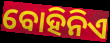
ବୋହିନିଏ